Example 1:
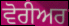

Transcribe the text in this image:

ਵੋਰੀਅਰ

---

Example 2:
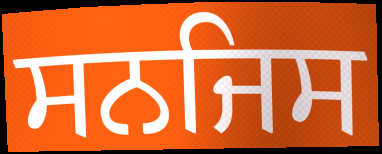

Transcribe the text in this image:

ਸਨਜਿਸ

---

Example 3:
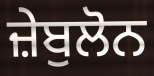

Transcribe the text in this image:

ਜ਼ੇਬੁਲੋਨ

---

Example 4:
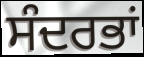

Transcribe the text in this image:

ਸੰਦਰਭਾਂ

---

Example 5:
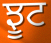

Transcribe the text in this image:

ਝੂਟ